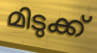
മിടുക്ക്